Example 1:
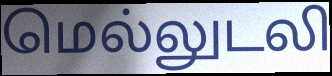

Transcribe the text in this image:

மெல்லுடலி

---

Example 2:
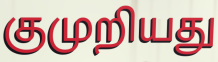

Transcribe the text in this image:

குமுறியது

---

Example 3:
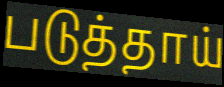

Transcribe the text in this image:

படுத்தாய்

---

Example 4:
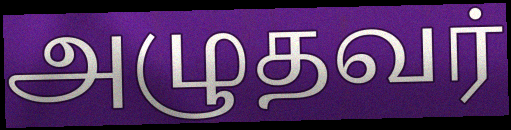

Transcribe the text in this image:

அழுதவர்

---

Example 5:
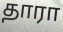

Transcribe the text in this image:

தாரா